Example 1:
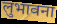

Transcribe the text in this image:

लुभावना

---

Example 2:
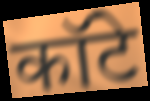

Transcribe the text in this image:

कॉटे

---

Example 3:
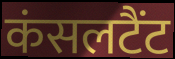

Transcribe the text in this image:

कंसलटैंट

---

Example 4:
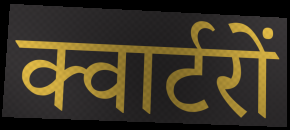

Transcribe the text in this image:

क्वार्टरों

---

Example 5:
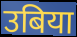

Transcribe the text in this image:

उबिया